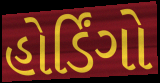
હોર્ડિંગો